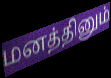
மனத்தினும்